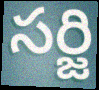
సర్జి